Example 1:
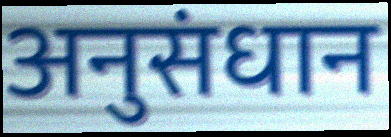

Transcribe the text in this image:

अनुसंधान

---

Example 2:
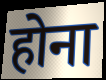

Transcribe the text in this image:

होना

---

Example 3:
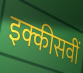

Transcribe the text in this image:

इक्कीसवीं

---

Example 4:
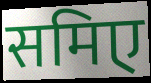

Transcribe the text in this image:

समिए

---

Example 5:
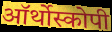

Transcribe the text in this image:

ऑर्थोस्कोपी